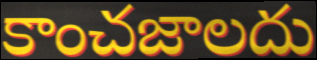
కాంచజాలదు